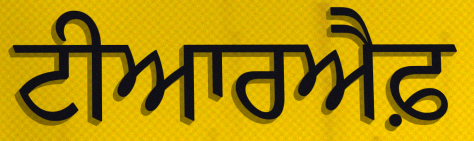
ਟੀਆਰਐਫ਼